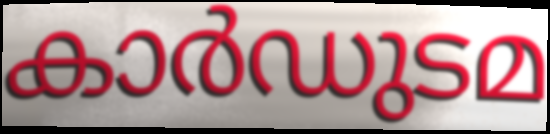
കാർഡുടമ